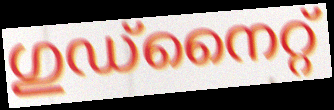
ഗുഡ്നൈറ്റ്